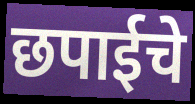
छपाईचे